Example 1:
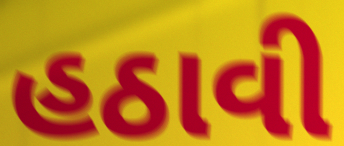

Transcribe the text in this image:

હઠાવી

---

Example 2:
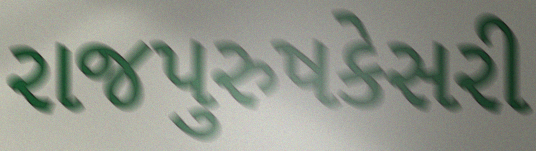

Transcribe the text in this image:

રાજપુરુષકેસરી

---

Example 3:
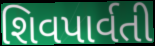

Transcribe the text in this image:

શિવપાર્વતી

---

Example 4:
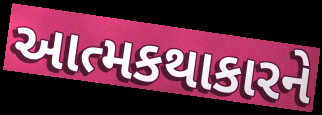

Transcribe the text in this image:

આત્મકથાકારને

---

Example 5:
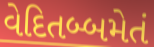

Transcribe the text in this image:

વેદિતબ્બમેતં